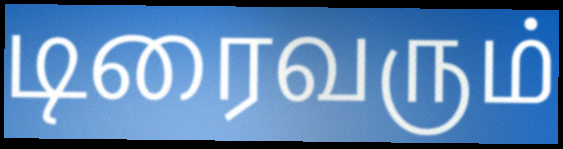
டிரைவரும்